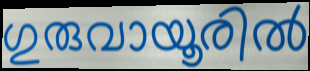
ഗുരുവായൂരിൽ